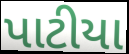
પાટીયા